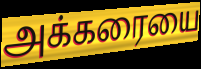
அக்கரையை